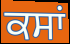
ਕਸਾਂ